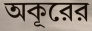
অকূরের